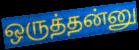
ஒருத்தன்னு